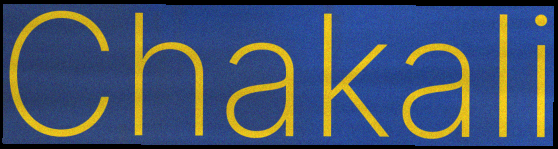
Chakali